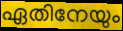
ഏതിനേയും